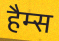
हैम्स